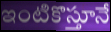
ఇంటికొస్తూనే